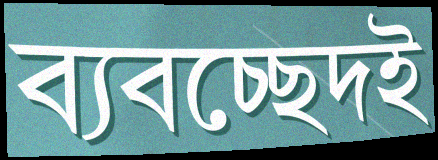
ব্যবচ্ছেদই